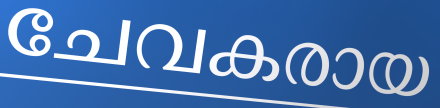
ചേവകരായ